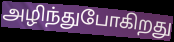
அழிந்துபோகிறது